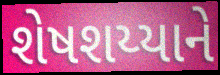
શેષશય્યાને